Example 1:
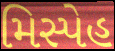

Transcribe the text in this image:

મિસ્પેહ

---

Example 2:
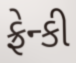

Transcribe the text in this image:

ફ્રેન્કી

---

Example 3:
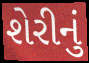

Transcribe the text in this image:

શેરીનું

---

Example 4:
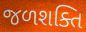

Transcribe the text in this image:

જળશક્તિ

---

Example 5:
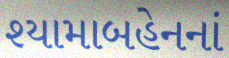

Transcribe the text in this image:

શ્યામાબહેનનાં